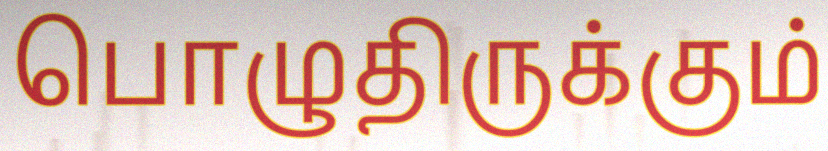
பொழுதிருக்கும்